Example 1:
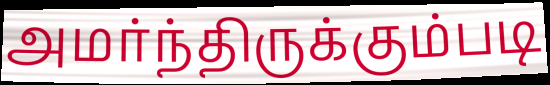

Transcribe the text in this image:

அமர்ந்திருக்கும்படி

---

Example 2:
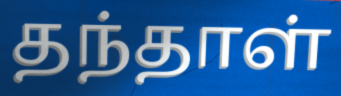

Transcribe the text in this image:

தந்தாள்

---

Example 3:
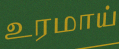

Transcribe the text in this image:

உரமாய்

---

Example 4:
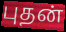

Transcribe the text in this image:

புதன்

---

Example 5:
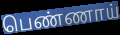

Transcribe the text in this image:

பெண்ணாய்